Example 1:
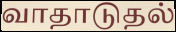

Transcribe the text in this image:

வாதாடுதல்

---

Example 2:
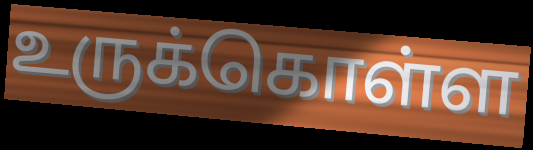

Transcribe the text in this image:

உருக்கொள்ள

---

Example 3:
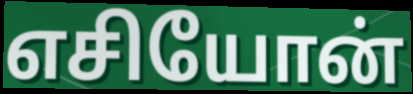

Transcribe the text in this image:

எசியோன்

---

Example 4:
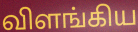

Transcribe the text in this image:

விளங்கிய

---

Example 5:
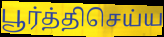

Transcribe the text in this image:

பூர்த்திசெய்ய